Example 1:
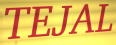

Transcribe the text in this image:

TEJAL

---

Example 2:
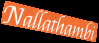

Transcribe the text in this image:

Nallathambi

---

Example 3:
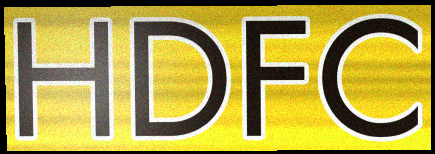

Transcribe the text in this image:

HDFC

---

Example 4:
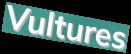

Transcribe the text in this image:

Vultures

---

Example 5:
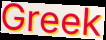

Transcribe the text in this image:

Greek